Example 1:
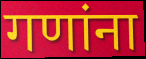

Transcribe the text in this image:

गणांना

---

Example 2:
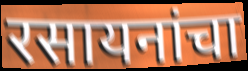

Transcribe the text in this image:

रसायनांचा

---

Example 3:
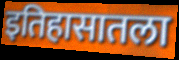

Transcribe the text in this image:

इतिहासातला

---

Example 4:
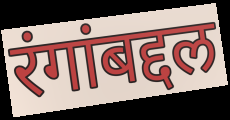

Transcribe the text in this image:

रंगांबद्दल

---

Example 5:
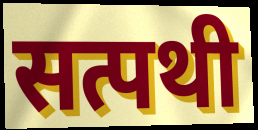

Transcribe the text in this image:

सत्पथी